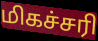
மிகச்சரி